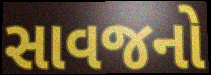
સાવજનો